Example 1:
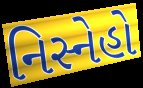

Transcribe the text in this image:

નિસ્નેહો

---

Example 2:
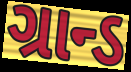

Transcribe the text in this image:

ગ્રાન્ડ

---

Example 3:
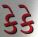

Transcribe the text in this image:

કેકે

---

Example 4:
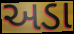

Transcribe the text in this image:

અડા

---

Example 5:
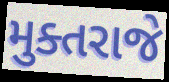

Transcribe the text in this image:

મુક્તરાજે